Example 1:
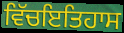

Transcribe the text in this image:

ਵਿੱਚਇਤਿਹਾਸ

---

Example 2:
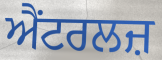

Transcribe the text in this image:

ਐਂਟਰਲਜ਼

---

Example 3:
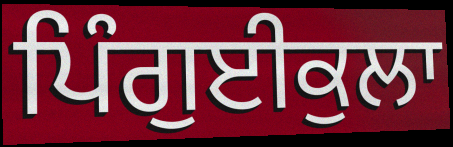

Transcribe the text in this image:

ਪਿੰਗੁਈਕੁਲਾ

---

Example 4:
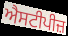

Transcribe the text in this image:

ਐਸਟੀਪੀਜ਼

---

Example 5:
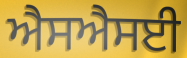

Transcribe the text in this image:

ਐਸਐਸਈ